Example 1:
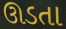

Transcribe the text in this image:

ઊડતા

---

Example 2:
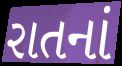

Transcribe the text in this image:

રાતનાં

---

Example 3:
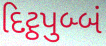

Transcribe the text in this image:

દિટ્ઠપુબ્બં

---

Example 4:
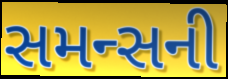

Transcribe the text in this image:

સમન્સની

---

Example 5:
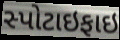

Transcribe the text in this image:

સ્પોટાઇફાઇ